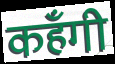
कहँगी